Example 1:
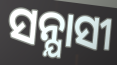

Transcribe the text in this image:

ସନ୍ଯାସୀ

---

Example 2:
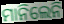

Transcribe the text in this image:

ମାନିଲେନି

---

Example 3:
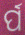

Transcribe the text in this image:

ର୍ପ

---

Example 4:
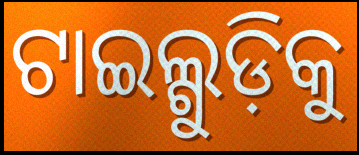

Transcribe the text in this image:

ଟାଇଲ୍ଗୁଡ଼ିକୁ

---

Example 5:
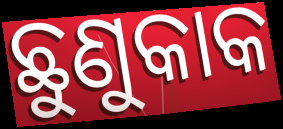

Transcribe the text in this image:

ଛୁଣୁକାକ